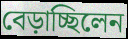
বেড়াচ্ছিলেন